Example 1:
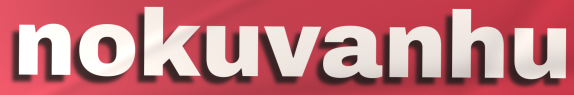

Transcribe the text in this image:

nokuvanhu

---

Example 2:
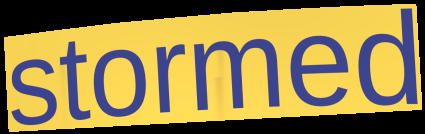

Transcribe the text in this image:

stormed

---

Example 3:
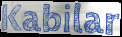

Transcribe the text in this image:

Kabilar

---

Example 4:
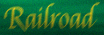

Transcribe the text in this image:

Railroad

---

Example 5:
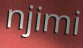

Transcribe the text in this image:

njimi